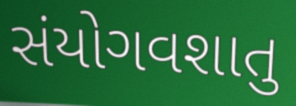
સંયોગવશાતુ